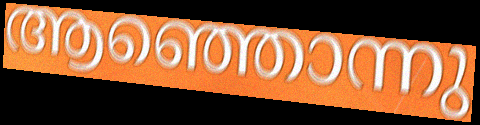
ആഞ്ഞൊന്നു